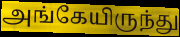
அங்கேயிருந்து